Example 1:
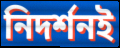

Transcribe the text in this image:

নিদর্শনই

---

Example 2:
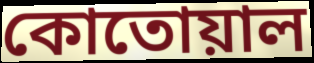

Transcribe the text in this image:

কোতোয়াল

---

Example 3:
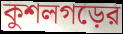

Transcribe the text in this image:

কুশলগড়ের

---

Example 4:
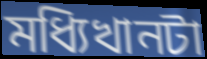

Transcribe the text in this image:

মধ্যিখানটা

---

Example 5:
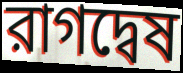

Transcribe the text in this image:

রাগদ্বেষ